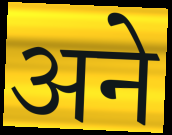
अने